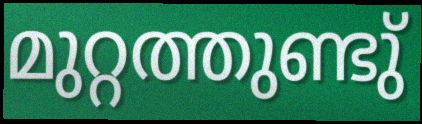
മുറ്റത്തുണ്ടു്